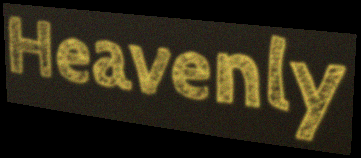
Heavenly